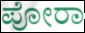
ಪೋರಾ